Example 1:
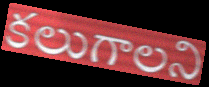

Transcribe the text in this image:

కలుగాలని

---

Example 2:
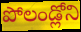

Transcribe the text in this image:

పోలండ్లోని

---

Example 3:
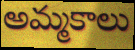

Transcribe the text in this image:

అమ్మకాలు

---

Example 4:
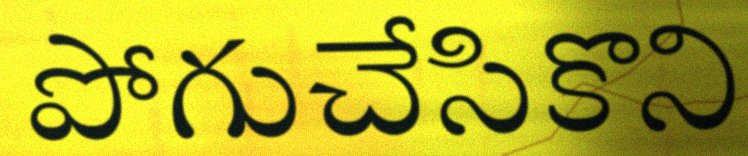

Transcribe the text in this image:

పోగుచేసికొని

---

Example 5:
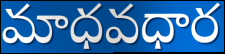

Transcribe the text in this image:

మాధవధార